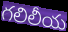
గలిలీయ